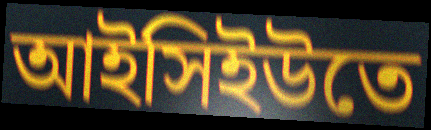
আইসিইউতে